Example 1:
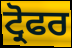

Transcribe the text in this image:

ਟ੍ਰੋਫਰ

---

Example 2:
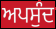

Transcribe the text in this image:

ਅਪਸੁੰਦ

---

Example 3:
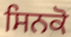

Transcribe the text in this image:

ਸਿਨਕੋ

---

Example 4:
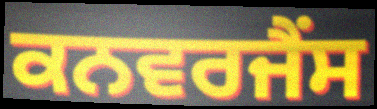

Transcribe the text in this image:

ਕਨਵਰਜੈਂਸ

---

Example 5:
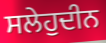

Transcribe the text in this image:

ਸਲੇਹੁਦੀਨ